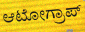
ಆಟೋಗ್ರಾಪ್